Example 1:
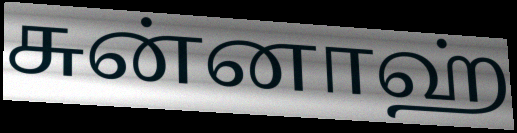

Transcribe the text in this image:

சுன்னாஹ்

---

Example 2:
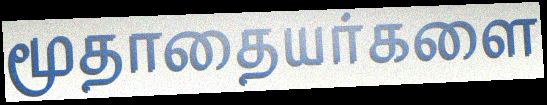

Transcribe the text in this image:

மூதாதையர்களை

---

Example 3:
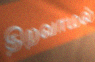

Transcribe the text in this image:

திறவாமல்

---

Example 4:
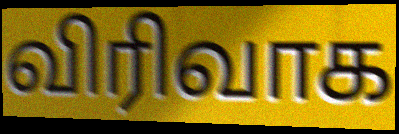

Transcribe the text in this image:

விரிவாக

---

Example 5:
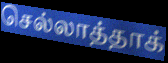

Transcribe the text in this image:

செல்லாத்தாக்